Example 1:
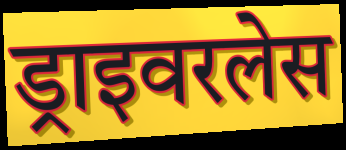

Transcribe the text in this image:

ड्राइवरलेस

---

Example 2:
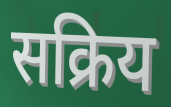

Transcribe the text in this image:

सक्रिय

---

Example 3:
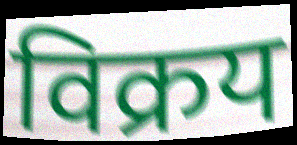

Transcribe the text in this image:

विक्रय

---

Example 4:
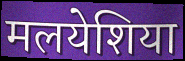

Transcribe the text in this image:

मलयेशिया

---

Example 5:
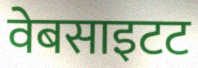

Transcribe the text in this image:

वेबसाइटट